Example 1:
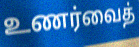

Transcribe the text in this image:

உணர்வைத்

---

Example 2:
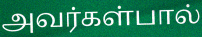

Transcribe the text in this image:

அவர்கள்பால்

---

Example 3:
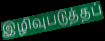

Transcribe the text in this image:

இழிவுபடுத்தப்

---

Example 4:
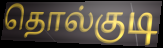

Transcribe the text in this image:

தொல்குடி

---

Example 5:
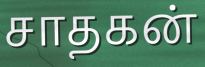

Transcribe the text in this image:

சாதகன்